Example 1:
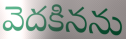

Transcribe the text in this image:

వెదకినను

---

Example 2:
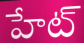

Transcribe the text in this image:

హేట్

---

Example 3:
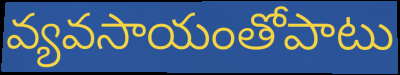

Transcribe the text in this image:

వ్యవసాయంతోపాటు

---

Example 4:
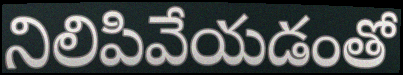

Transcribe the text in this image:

నిలిపివేయడంతో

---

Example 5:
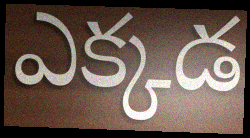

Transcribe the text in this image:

ఎక్కడ